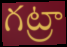
గట్రా